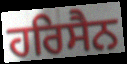
ਹਰਿਸੈਨ